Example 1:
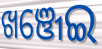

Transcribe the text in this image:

ଖଞ୍ଜେଇ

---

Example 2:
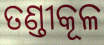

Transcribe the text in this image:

ତଣ୍ଡୀକୂଳ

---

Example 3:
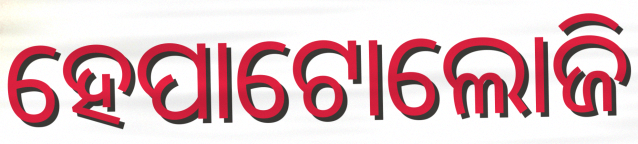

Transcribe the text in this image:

ହେପାଟୋଲୋଜି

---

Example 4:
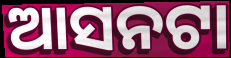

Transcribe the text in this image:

ଆସନଟା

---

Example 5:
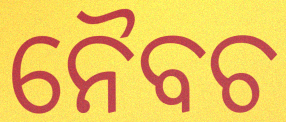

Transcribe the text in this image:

ନୈବଚ